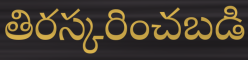
తిరస్కరించబడి